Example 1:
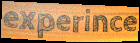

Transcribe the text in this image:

experince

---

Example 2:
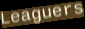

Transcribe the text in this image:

Leaguers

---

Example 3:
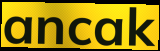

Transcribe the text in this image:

ancak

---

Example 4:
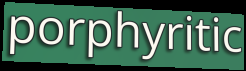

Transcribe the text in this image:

porphyritic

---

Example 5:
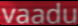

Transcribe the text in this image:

vaadu